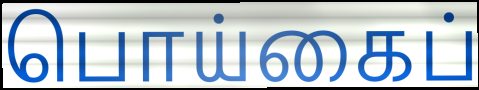
பொய்கைப்